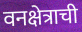
वनक्षेत्राची